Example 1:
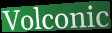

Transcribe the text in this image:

Volconic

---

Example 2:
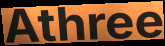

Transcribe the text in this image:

Athree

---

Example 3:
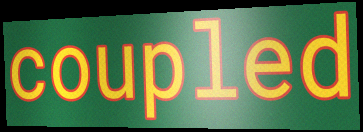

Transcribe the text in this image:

coupled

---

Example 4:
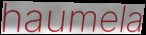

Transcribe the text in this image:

haumela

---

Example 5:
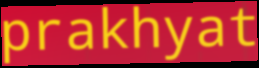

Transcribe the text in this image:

prakhyat